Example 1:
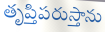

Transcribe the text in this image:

తృప్తిపరుస్తాను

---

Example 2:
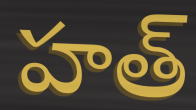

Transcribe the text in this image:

హత్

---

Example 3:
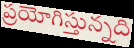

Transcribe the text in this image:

ప్రయోగిస్తున్నది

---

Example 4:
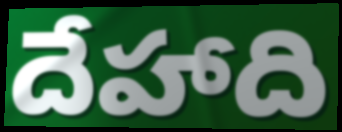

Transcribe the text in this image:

దేహాది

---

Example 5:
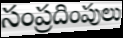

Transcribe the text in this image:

సంప్రదింపులు